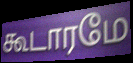
கூடாரமே